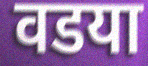
वडया